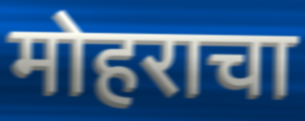
मोहराचा